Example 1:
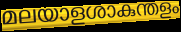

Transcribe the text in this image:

മലയാളശാകുന്തളം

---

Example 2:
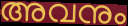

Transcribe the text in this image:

അവനും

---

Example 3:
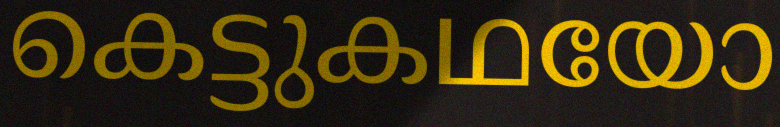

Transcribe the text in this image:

കെട്ടുകഥയോ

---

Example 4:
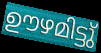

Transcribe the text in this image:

ഊഴമിട്ടു്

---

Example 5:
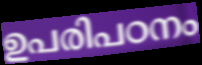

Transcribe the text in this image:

ഉപരിപഠനം